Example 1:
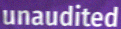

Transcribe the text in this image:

unaudited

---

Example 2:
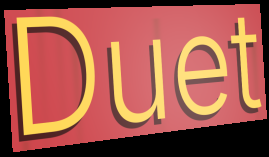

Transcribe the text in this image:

Duet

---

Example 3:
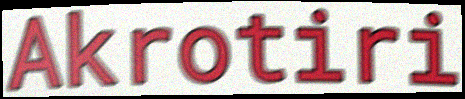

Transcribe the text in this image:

Akrotiri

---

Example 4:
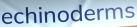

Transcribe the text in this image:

echinoderms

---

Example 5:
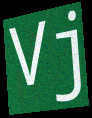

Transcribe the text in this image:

Vj